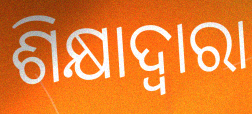
ଶିକ୍ଷାଦ୍ୱାରା